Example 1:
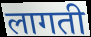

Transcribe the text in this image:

लागती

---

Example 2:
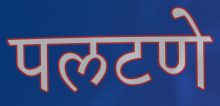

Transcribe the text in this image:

पलटणे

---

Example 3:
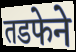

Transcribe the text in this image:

तडफेने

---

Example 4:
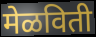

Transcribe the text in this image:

मेळविती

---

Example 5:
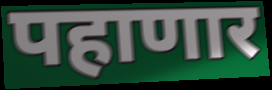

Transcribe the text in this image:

पहाणार